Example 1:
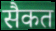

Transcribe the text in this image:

सैकत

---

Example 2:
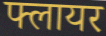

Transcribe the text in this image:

फ्लायर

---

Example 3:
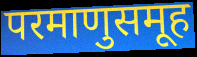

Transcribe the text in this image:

परमाणुसमूह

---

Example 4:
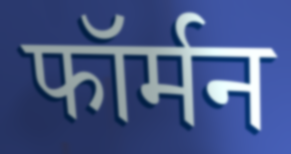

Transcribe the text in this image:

फॉर्मन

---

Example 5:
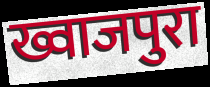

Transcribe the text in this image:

ख्वाजपुरा